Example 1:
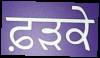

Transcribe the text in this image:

ਫ਼ਡ਼ਕੇ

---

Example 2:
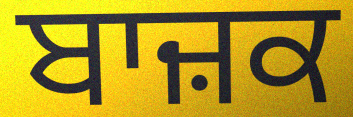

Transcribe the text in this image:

ਬਾਜ਼ਕ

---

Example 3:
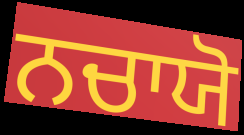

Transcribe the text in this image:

ਨਚਾਯੋ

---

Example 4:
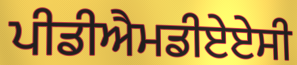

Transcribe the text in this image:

ਪੀਡੀਐਮਡੀਏਏਸੀ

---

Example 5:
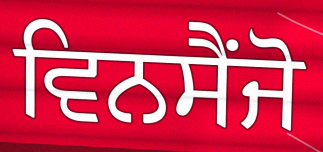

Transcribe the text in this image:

ਵਿਨਸੈਂਜੋ